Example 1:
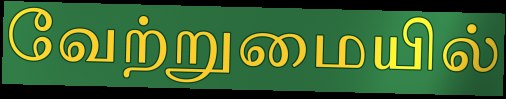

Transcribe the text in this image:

வேற்றுமையில்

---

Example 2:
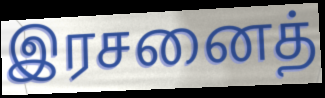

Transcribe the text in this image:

இரசனைத்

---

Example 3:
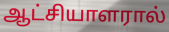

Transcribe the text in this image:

ஆட்சியாளரால்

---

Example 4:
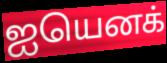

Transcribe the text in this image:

ஐயெனக்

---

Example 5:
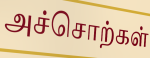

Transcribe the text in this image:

அச்சொற்கள்